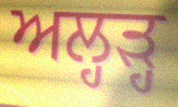
ਅਲ੍ਹੜ੍ਹ